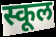
स्कूल